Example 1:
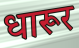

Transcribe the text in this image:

धारूर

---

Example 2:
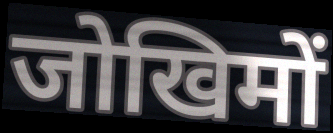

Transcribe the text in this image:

जोखिमों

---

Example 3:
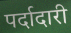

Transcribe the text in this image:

पर्दादारी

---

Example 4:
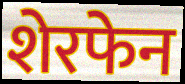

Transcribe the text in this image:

शेरफेन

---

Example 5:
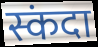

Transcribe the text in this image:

स्कंदा